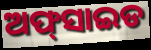
ଅଫ୍‍ସାଇଡ